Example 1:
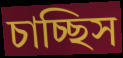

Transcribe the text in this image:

চাচ্ছিস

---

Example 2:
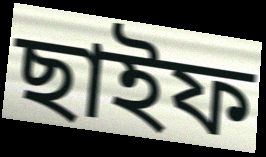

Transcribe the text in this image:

ছাইফ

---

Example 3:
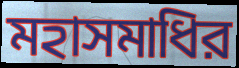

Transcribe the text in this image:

মহাসমাধির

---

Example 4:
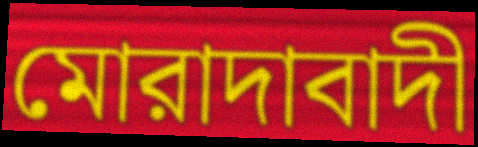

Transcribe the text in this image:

মোরাদাবাদী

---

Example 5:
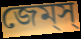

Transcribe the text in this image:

জেম্স্